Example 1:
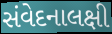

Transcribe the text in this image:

સંવેદનાલક્ષી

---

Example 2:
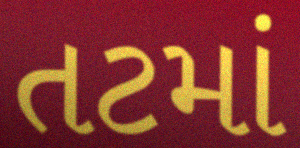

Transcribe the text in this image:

તટમાં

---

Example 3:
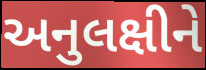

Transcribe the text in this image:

અનુલક્ષીને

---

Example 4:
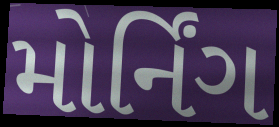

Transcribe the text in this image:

મોર્નિંગ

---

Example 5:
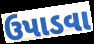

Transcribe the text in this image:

ઉપાડવા